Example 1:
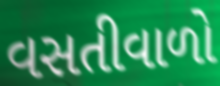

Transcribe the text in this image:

વસતીવાળો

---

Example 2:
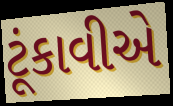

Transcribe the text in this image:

ટૂંકાવીએ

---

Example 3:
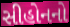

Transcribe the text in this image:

સીહોનનો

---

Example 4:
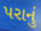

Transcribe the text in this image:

પરાનું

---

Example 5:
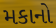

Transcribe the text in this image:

મકાનો